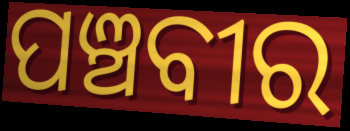
ପଞ୍ଚବୀର